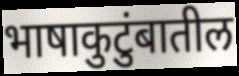
भाषाकुटुंबातील